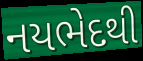
નયભેદથી